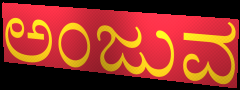
ಅಂಜುವ